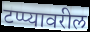
टप्प्यावरील